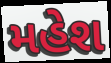
મહેશ